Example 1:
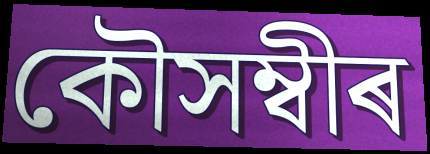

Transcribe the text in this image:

কৌসম্বীৰ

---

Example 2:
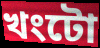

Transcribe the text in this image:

খংটো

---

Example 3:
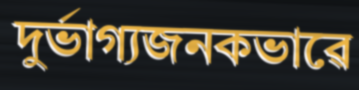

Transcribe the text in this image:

দুৰ্ভাগ্যজনকভাৱে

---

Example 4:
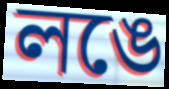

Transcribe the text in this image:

লঙে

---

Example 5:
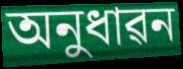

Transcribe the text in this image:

অনুধাৱন